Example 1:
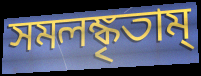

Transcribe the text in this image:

সমলঙ্কৃতাম্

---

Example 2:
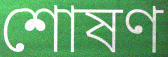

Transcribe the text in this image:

শোষণ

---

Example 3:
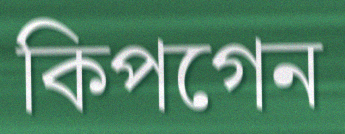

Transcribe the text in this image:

কিপগেন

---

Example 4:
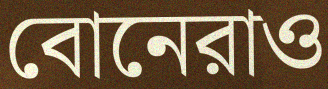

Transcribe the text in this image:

বোনেরাও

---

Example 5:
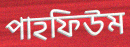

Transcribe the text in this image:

পাহফিউম